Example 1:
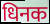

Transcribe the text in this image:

धिनक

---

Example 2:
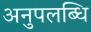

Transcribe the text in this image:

अनुपलब्धि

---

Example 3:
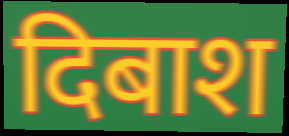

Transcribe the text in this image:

दिबाश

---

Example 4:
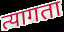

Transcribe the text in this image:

त्यागता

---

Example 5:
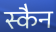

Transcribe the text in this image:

स्‍कैन